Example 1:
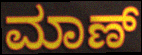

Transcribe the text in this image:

ಮಾಣ್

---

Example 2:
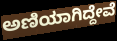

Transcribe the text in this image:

ಅಣಿಯಾಗಿದ್ದೇವೆ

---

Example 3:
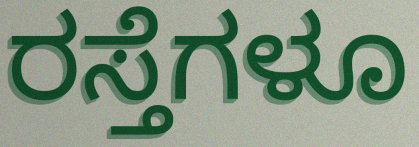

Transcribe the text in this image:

ರಸ್ತೆಗಳೂ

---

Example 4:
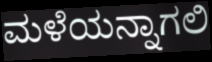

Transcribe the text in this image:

ಮಳೆಯನ್ನಾಗಲಿ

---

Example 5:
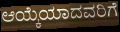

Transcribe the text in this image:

ಆಯ್ಕೆಯಾದವರಿಗೆ